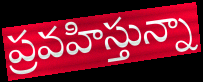
ప్రవహిస్తున్నా